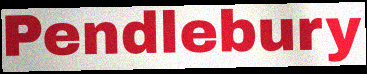
Pendlebury